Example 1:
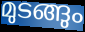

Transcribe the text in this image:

മുടങ്ങും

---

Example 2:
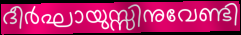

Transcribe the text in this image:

ദീർഘായുസ്സിനുവേണ്ടി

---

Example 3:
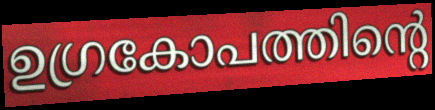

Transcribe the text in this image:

ഉഗ്രകോപത്തിന്റെ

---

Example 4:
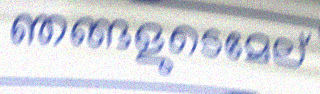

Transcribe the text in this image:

ഞങ്ങളുടെമേല്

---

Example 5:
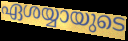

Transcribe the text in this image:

ഏശയ്യായുടെ